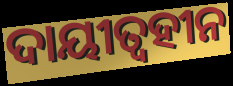
ଦାୟୀତ୍ୱହୀନ